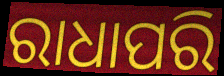
ରାଧାପରି